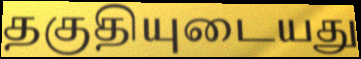
தகுதியுடையது